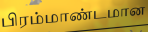
பிரம்மாண்டமான